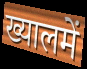
ख्यालमें